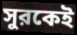
সুরকেই